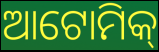
ଆଟୋମିକ୍